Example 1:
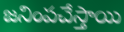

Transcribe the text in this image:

జనింపచేస్తాయి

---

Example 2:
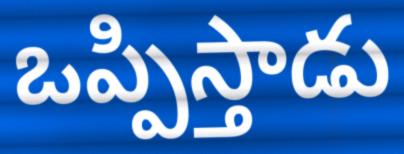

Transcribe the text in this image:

ఒప్పిస్తాడు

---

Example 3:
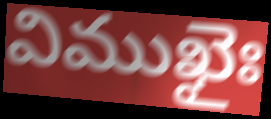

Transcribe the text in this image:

విముఖైః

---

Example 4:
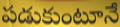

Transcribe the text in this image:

పడుకుంటూనే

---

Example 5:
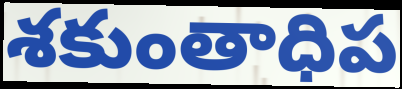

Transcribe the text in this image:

శకుంతాధిప